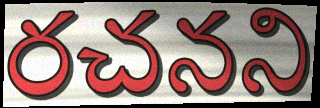
రచనని